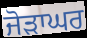
ਜੋੜਾਘਰ